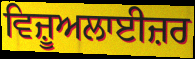
ਵਿਜ਼ੂਅਲਾਈਜ਼ਰ